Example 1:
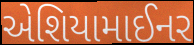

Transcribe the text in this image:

એશિયામાઈનર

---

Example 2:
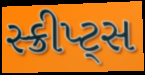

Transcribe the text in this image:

સ્ક્રીપ્ટ્સ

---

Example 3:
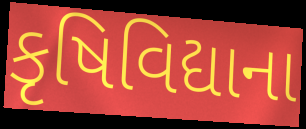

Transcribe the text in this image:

કૃષિવિદ્યાના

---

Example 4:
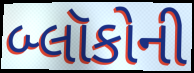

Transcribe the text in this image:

બ્લૉકોની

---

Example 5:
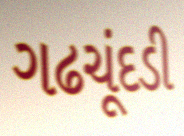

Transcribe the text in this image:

ગઢચૂંદડી